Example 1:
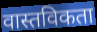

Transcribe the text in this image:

वास्तविकता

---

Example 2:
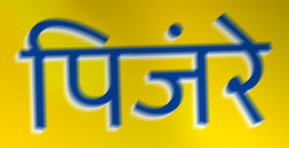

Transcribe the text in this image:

पिजंरे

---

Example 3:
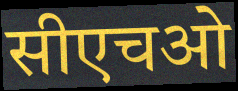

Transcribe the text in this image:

सीएचओ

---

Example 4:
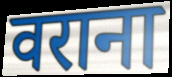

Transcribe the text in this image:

वराना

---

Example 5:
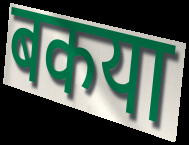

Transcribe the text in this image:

बकया